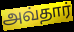
அவ்தார்